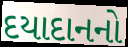
દયાદાનનો